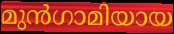
മുൻഗാമിയായ